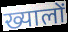
ख्यालों